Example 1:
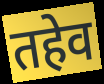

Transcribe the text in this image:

तहेव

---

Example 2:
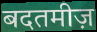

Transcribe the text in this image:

बदतमीज़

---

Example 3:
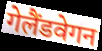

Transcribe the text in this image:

गेलैंडवेगन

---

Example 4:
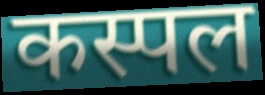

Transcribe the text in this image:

कस्पल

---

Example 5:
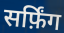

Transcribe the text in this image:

सर्फ़िंग